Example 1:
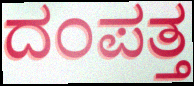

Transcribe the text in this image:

ದಂಪತ್ತ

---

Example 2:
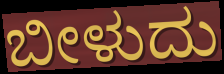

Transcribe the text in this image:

ಬೀಳುದು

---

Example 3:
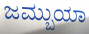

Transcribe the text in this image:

ಜಮ್ಬುಯಾ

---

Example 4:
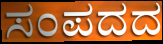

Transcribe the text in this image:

ಸಂಪದದ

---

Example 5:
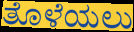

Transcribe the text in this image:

ತೊಳೆಯಲು